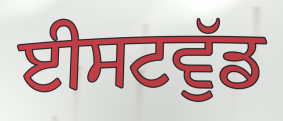
ਈਸਟਵੁੱਡ